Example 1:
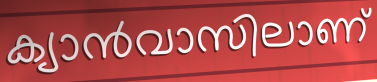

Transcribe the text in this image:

ക്യാൻവാസിലാണ്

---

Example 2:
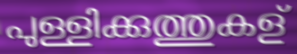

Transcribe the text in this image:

പുള്ളിക്കുത്തുകള്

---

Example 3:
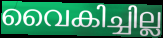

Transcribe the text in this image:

വൈകിച്ചില്ല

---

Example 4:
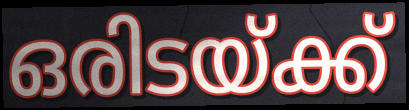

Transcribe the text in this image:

ഒരിടയ്ക്ക്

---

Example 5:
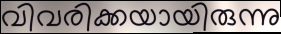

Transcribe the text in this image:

വിവരിക്കയായിരുന്നു